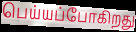
பெய்யப்போகிறது